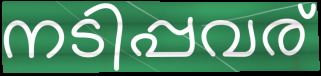
നടിപ്പവര്